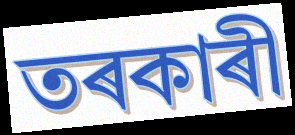
তৰকাৰী